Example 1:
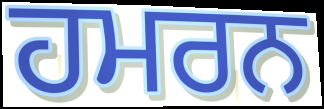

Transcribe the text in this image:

ਹਮਰਨ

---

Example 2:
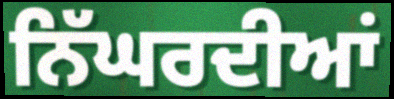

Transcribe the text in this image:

ਨਿੱਘਰਦੀਆਂ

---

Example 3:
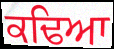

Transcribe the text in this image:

ਕਢਿਆ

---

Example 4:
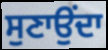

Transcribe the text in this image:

ਸੁਣਾਉਂਦਾ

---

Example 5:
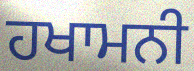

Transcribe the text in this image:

ਹਖਾਮਨੀ